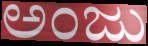
ಅಂಜು